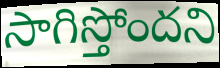
సాగిస్తోందని